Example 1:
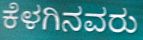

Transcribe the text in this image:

ಕೆಳಗಿನವರು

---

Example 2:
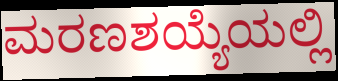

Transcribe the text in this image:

ಮರಣಶಯ್ಯೆಯಲ್ಲಿ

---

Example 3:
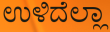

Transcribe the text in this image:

ಉಳಿದೆಲ್ಲಾ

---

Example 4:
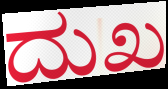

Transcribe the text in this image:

ದುಖ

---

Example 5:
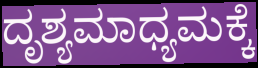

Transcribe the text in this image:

ದೃಶ್ಯಮಾಧ್ಯಮಕ್ಕೆ